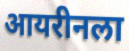
आयरीनला